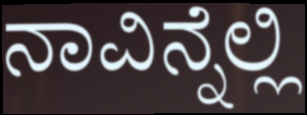
ನಾವಿನ್ನೆಲ್ಲಿ